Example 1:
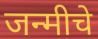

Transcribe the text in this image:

जन्मीचे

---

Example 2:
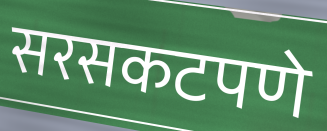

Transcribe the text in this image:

सरसकटपणे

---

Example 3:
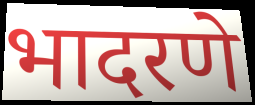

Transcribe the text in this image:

भादरणे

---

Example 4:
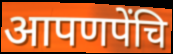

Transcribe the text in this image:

आपणपेंचि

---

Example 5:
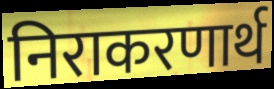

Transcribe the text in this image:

निराकरणार्थ